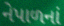
નેપાળનાં